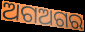
ଅଗଅଗର